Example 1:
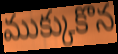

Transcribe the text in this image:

ముక్కుకొన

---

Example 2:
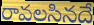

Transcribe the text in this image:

రావలసినదే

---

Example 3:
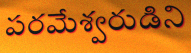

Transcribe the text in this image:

పరమేశ్వరుడిని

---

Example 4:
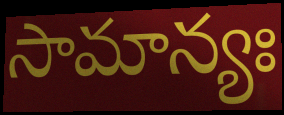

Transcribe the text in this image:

సామాన్యః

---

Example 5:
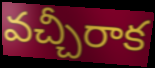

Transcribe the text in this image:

వచ్చీరాక